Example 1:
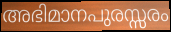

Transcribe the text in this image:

അഭിമാനപുരസ്സരം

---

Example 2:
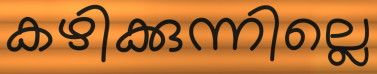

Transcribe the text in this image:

കഴിക്കുന്നില്ലെ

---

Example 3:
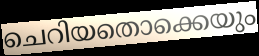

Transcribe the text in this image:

ചെറിയതൊക്കെയും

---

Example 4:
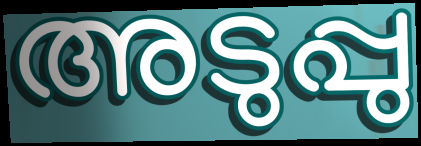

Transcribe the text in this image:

അടുപ്പു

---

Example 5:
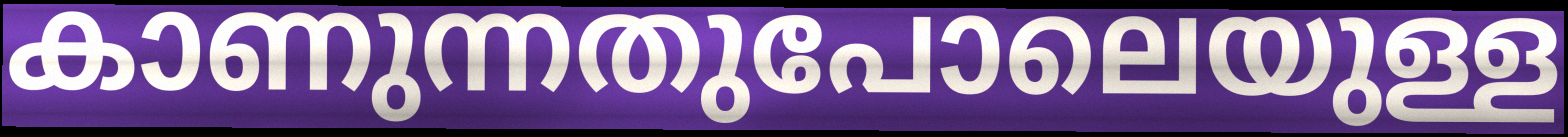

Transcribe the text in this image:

കാണുന്നതുപോലെയുള്ള